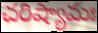
చరిష్యామః